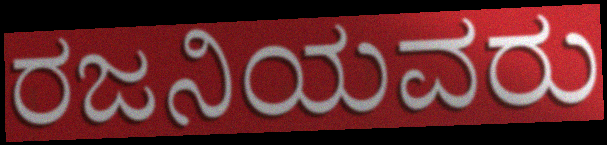
ರಜನಿಯವರು